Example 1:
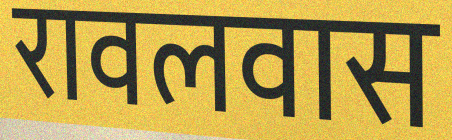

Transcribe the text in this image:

रावलवास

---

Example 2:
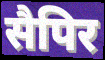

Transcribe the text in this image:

सैपिर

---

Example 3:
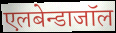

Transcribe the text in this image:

एलबेन्डाजॉल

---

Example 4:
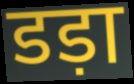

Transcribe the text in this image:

डड़ा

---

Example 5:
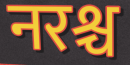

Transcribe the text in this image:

नरश्च